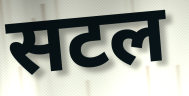
सटल